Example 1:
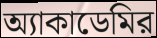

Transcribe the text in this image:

অ্যাকাডেমির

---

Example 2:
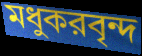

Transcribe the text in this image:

মধুকরবৃন্দ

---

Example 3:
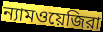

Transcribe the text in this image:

ন্যামওয়েজিরা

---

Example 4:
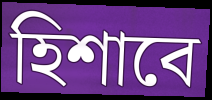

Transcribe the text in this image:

হিশাবে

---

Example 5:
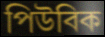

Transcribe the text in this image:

পিউবিক